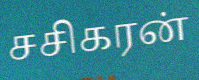
சசிகரன்